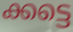
ക്കട്ടെ